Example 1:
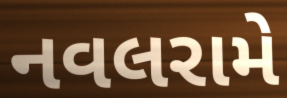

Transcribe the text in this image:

નવલરામે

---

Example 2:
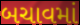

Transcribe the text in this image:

બચાવમાં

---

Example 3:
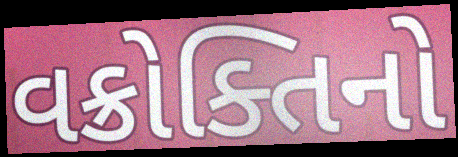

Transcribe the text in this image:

વક્રોક્તિનો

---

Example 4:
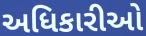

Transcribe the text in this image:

અધિકારીઓ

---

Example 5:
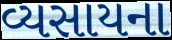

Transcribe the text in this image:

વ્યસાયના